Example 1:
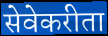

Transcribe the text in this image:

सेवेकरीता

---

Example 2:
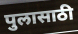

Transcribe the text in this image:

पुलासाठी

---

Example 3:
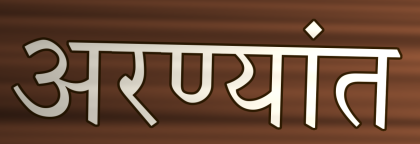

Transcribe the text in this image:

अरण्यांत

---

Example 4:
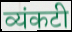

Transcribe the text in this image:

व्यंकटी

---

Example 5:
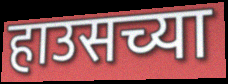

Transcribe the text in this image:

हाउसच्या